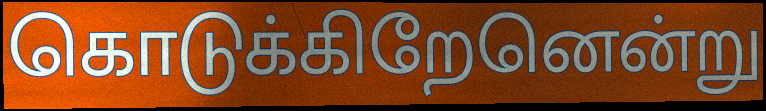
கொடுக்கிறேனென்று